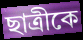
ছাত্রীকে